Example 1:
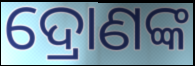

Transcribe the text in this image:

ଦ୍ରୋଣଙ୍କ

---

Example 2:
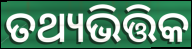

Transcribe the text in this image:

ତଥ୍ୟଭିତ୍ତିକ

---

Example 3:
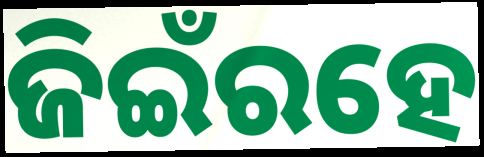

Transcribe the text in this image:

ଜିଇଁରହେ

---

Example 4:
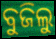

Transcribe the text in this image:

ବୁଜିଲୁ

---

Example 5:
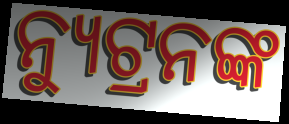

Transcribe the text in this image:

ନ୍ୟୁଟ୍ରନଙ୍କ